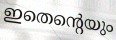
ഇതെന്റെയും